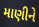
માણીને